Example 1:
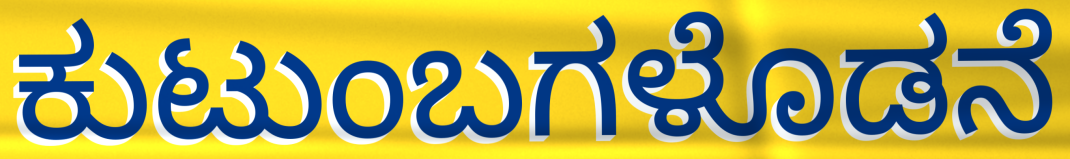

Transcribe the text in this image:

ಕುಟುಂಬಗಳೊಡನೆ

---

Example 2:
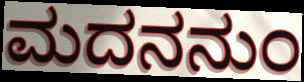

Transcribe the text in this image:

ಮದನನುಂ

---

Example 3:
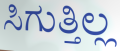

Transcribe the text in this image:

ಸಿಗುತ್ತಿಲ್ಲ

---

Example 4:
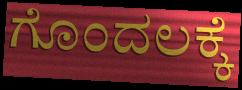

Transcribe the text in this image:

ಗೊಂದಲಕ್ಕೆ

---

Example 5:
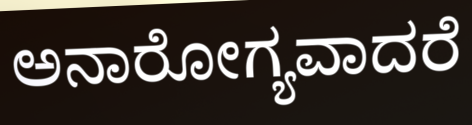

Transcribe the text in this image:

ಅನಾರೋಗ್ಯವಾದರೆ